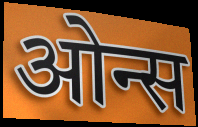
ओन्स